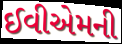
ઈવીએમની